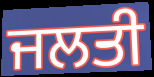
ਜਲਤੀ